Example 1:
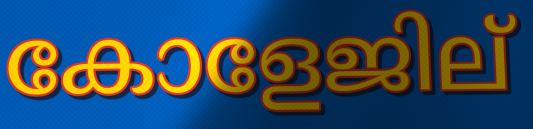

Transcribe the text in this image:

കോളേജില്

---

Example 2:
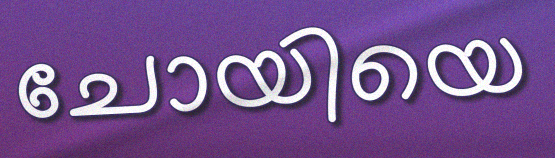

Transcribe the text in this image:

ചോയിയെ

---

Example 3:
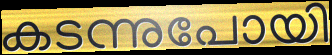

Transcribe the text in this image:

കടന്നുപോയി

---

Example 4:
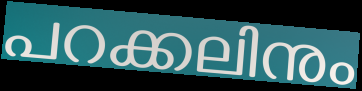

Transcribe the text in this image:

പറക്കലിനും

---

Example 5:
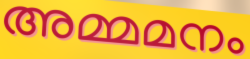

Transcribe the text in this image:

അമ്മമനം